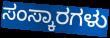
ಸಂಸ್ಕಾರಗಳು